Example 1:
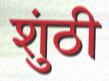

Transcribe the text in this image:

शुंठी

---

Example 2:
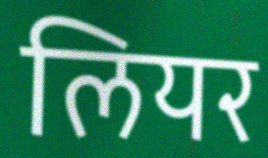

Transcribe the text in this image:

लियर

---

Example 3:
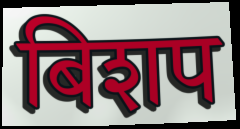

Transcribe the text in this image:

बिशप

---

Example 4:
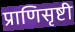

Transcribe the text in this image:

प्राणिसृष्टी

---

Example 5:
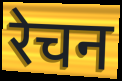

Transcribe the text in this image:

रेचन